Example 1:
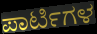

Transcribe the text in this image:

ಪಾರ್ಟಿಗಳ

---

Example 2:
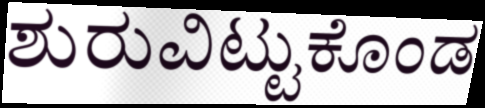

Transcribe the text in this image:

ಶುರುವಿಟ್ಟುಕೊಂಡ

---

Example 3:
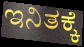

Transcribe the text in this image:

ಇನಿತಕ್ಕೆ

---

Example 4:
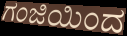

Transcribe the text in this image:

ಗಂಜಿಯಿಂದ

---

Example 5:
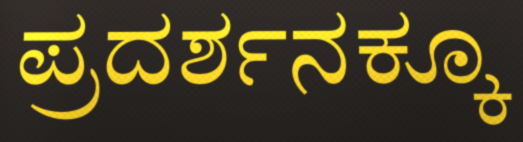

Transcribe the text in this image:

ಪ್ರದರ್ಶನಕ್ಕೂ